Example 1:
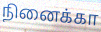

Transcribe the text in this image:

நினைக்கா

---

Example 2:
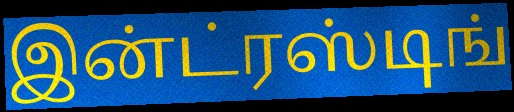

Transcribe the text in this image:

இன்ட்ரஸ்டிங்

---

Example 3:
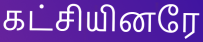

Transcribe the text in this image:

கட்சியினரே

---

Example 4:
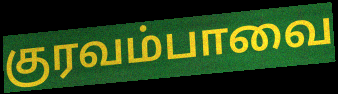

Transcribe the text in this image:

குரவம்பாவை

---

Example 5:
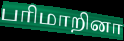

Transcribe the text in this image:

பரிமாறினா